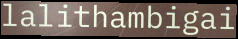
lalithambigai